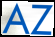
AZ